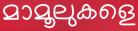
മാമൂലുകളെ